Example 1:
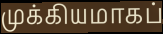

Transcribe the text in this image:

முக்கியமாகப்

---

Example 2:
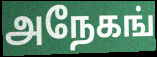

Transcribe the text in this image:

அநேகங்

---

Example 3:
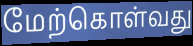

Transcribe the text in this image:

மேற்கொள்வது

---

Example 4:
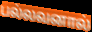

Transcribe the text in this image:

பல்லவனால்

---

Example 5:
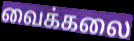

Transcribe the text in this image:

வைக்கலை